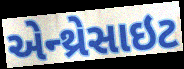
એન્થ્રેસાઇટ